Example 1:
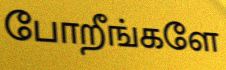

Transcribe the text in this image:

போறீங்களே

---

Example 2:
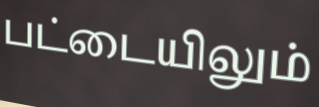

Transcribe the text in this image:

பட்டையிலும்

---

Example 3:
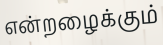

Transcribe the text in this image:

என்றழைக்கும்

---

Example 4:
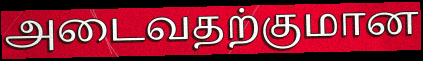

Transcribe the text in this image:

அடைவதற்குமான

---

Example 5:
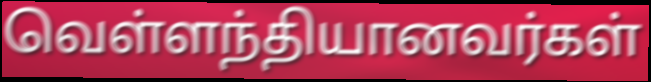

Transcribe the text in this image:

வெள்ளந்தியானவர்கள்